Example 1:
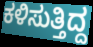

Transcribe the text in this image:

ಕಳಿಸುತ್ತಿದ್ದ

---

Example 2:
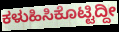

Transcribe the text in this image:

ಕಳುಹಿಸಿಕೊಟ್ಟಿದ್ದೀ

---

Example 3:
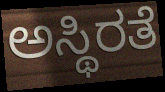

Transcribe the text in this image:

ಅಸ್ಥಿರತೆ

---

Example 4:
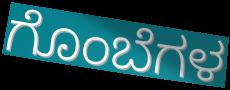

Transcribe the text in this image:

ಗೊಂಬೆಗಳ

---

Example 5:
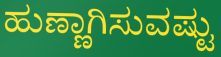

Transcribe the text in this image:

ಹುಣ್ಣಾಗಿಸುವಷ್ಟು